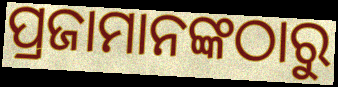
ପ୍ରଜାମାନଙ୍କଠାରୁ